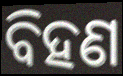
ବିହଣ